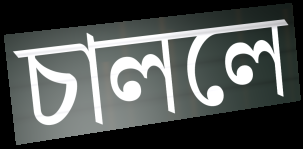
চাললে